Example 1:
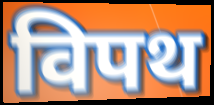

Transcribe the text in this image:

विपथ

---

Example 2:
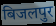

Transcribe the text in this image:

बिजलपुर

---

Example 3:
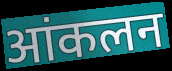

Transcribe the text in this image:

आंकलन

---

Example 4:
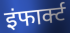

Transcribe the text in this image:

इंफार्क्ट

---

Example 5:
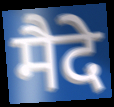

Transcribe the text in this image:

मैदे